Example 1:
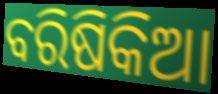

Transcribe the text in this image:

ବରିଷିକିଆ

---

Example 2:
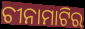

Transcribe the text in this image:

ଚୀନାମାଟିର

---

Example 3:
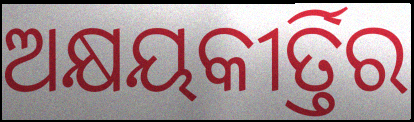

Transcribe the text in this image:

ଅକ୍ଷୟକୀର୍ତ୍ତିର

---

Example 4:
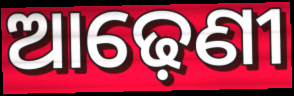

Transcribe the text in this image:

ଆଢ଼େଣୀ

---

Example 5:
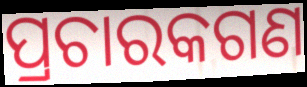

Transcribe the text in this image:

ପ୍ରଚାରକଗଣ